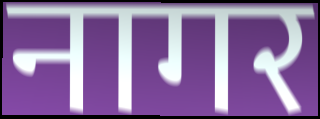
नागर